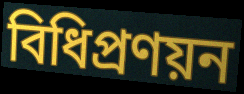
বিধিপ্রণয়ন